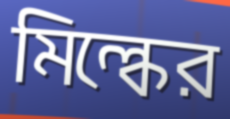
মিল্কের